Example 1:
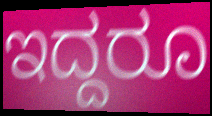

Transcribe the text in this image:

ಇದ್ದರೂ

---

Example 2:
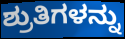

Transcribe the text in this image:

ಶ್ರುತಿಗಳನ್ನು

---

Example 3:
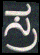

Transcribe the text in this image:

ಸ್ರ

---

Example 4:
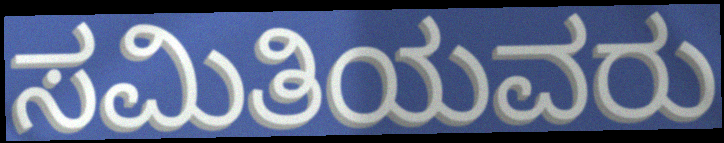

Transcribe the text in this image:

ಸಮಿತಿಯವರು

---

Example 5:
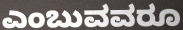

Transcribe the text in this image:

ಎಂಬುವವರೂ